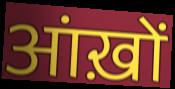
आंख़ों